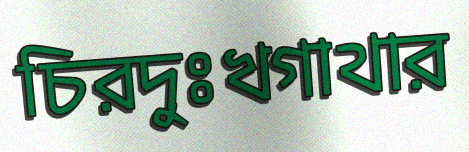
চিরদুঃখগাথার